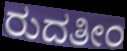
ರುದತೀಂ